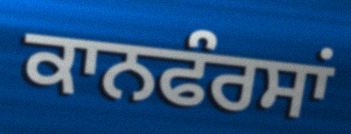
ਕਾਨਫੰਰਸਾਂ